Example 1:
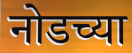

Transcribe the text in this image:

नोडच्या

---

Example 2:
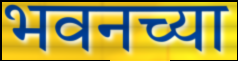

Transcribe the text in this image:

भवनच्या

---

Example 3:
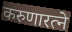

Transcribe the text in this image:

करुणारत्ने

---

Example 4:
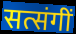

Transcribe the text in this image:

सत्संगीं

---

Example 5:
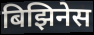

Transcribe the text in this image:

बिझिनेस